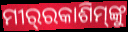
ମୀର୍‌ରକାଶିମ୍‌ଙ୍କୁ